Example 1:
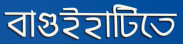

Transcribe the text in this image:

বাগুইহাটিতে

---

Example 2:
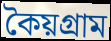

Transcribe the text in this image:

কৈয়গ্রাম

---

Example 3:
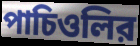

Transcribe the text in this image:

পাচিওলির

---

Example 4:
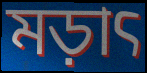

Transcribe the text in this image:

মড়াৎ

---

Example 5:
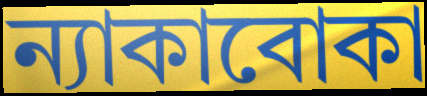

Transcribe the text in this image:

ন্যাকাবোকা